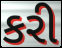
કરી